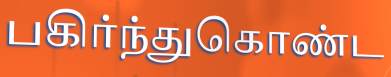
பகிர்ந்துகொண்ட